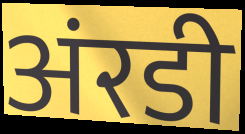
अंरडी